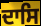
ਦਾਸਿ